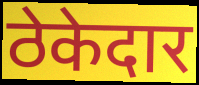
ठेकेदार